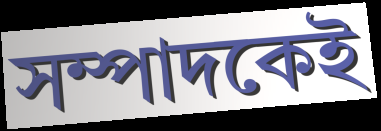
সম্পাদকেই